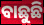
ବାଛୁଛି